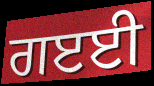
ਗੲਈ